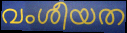
വംശീയത